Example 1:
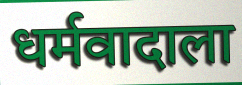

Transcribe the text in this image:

धर्मवादाला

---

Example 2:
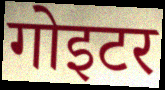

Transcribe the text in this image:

गोइटर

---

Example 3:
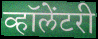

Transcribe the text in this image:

व्हॉलेंटरी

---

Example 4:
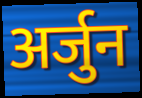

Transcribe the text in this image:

अर्जुन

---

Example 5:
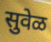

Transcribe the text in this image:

सुवेळ